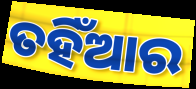
ତହିଁଆର